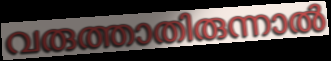
വരുത്താതിരുന്നാൽ